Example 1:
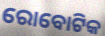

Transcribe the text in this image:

ରୋବୋଟିକ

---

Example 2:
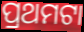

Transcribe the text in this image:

ପ୍ରଥମଟା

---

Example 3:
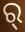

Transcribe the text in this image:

ର୍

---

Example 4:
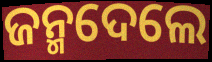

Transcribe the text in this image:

ଜନ୍ମଦେଲେ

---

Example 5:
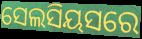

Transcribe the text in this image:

ସେଲସିୟସରେ